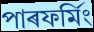
পাৰফৰ্মিং